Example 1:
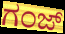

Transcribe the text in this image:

ಗಂಜ್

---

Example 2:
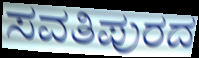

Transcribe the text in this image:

ಸವತಿಪುರದ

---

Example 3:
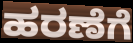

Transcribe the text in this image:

ಹರಣೆಗೆ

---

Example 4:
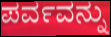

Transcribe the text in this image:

ಪರ್ವವನ್ನು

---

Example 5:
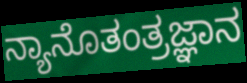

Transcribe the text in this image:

ನ್ಯಾನೊತಂತ್ರಜ್ಞಾನ